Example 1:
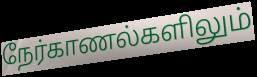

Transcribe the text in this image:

நேர்காணல்களிலும்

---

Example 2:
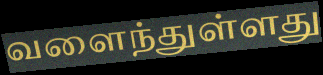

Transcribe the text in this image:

வளைந்துள்ளது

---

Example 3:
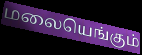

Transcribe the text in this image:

மலையெங்கும்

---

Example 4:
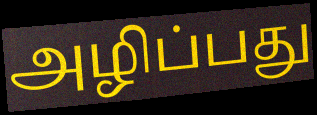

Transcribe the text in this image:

அழிப்பது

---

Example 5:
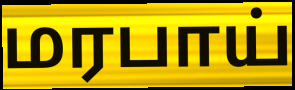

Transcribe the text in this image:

மரபாய்